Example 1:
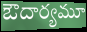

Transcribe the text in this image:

ఔదార్యమూ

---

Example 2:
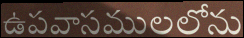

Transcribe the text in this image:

ఉపవాసములలోను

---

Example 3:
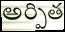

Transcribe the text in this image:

అర్పిత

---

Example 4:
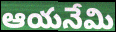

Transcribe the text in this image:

ఆయనేమి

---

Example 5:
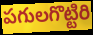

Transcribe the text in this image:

పగులగొట్టిరి